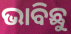
ଭାବିଛୁ